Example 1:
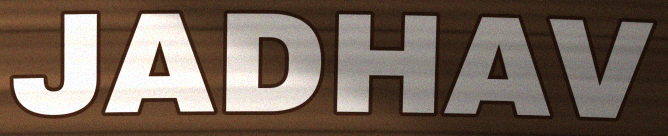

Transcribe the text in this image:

JADHAV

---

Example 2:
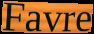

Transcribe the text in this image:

Favre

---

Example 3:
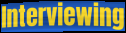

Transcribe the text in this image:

Interviewing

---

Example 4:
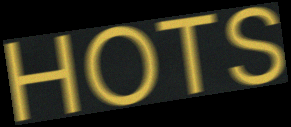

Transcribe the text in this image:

HOTS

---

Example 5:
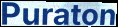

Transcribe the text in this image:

Puraton